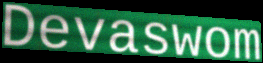
Devaswom